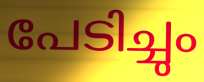
പേടിച്ചും